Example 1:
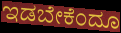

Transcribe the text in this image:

ಇಡಬೇಕೆಂದೂ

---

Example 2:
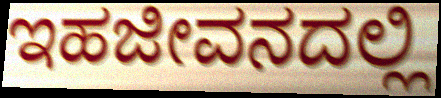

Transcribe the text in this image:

ಇಹಜೀವನದಲ್ಲಿ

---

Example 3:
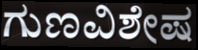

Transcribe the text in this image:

ಗುಣವಿಶೇಷ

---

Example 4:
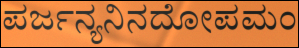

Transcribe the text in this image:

ಪರ್ಜನ್ಯನಿನದೋಪಮಂ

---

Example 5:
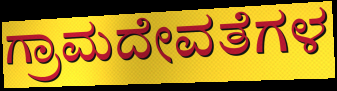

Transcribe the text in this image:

ಗ್ರಾಮದೇವತೆಗಳ